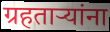
ग्रहताऱ्यांना